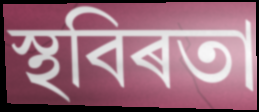
স্থবিৰতা